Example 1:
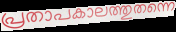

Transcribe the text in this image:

പ്രതാപകാലത്തുതന്നെ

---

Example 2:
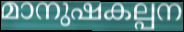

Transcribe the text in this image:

മാനുഷകല്പന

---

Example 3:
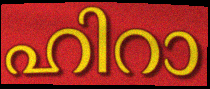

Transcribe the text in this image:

ഹിറാ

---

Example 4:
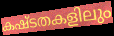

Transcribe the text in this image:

കഷ്ടതകളിലും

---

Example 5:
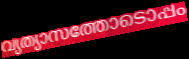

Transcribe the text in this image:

വ്യത്യാസത്തോടൊപ്പം